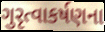
ગુરૃત્વાકર્ષણના